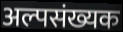
अल्पसंख्यक